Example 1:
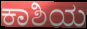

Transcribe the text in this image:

ಕಾಶಿಯ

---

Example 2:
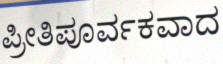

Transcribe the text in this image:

ಪ್ರೀತಿಪೂರ್ವಕವಾದ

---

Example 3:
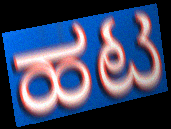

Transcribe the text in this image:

ಹಟ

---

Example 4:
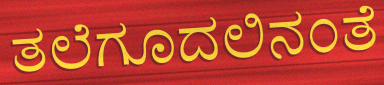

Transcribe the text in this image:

ತಲೆಗೂದಲಿನಂತೆ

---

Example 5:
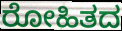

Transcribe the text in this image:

ರೋಹಿತದ